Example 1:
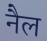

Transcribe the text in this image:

नैल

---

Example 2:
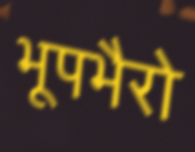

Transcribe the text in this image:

भूपभैरो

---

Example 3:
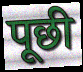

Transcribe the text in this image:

पूछी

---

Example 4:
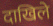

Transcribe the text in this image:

दाखिले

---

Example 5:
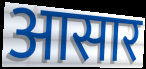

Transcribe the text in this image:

आसार